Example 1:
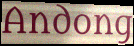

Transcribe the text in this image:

Andong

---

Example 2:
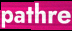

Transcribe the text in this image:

pathre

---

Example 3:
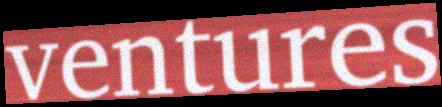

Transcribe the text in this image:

ventures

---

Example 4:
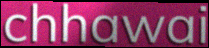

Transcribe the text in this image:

chhawai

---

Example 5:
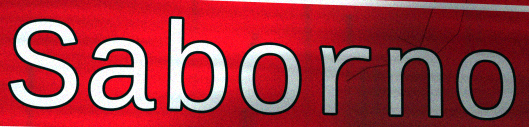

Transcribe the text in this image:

Saborno